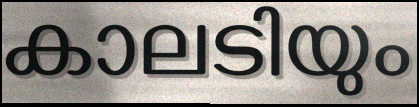
കാലടിയും